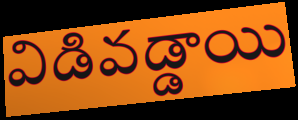
విడివడ్డాయి